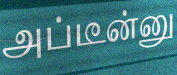
அப்டீன்னு